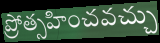
ప్రోత్సహించవచ్చు